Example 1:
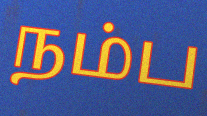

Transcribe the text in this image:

நம்ப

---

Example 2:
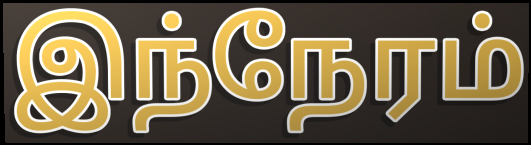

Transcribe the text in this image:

இந்நேரம்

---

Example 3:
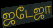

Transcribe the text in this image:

ஜடேஜா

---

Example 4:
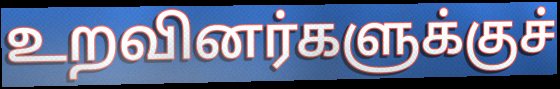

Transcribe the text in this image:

உறவினர்களுக்குச்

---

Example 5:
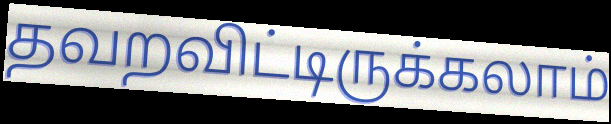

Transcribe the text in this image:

தவறவிட்டிருக்கலாம்